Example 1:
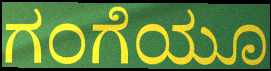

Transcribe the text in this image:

ಗಂಗೆಯೂ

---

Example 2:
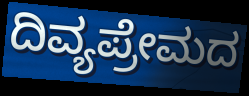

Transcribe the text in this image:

ದಿವ್ಯಪ್ರೇಮದ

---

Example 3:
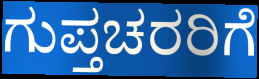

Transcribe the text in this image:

ಗುಪ್ತಚರರಿಗೆ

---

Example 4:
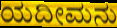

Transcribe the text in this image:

ಯದೀಮನು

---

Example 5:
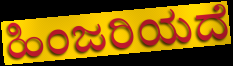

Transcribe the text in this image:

ಹಿಂಜರಿಯದೆ